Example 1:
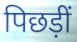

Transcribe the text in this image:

पिछड़ीं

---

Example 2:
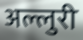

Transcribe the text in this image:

अल्लुरी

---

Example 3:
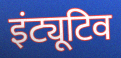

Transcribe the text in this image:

इंट्यूटिव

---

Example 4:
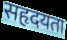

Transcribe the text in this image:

सहृदयता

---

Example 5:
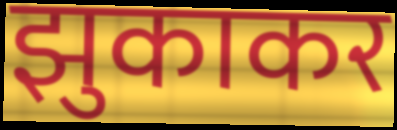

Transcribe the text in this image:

झुकाकर